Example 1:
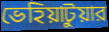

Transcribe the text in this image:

ভেহিয়াটুয়ার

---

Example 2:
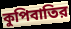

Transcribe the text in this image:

কুপিবাতির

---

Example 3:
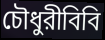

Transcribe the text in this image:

চৌধুরীবিবি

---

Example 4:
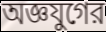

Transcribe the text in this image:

অজ্ঞযুগের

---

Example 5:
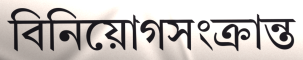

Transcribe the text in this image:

বিনিয়োগসংক্রান্ত